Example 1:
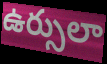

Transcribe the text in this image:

ఉర్సులా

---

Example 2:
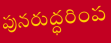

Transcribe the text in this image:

పునరుద్ధరింప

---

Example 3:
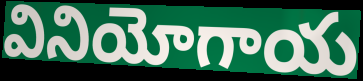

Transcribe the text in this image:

వినియోగాయ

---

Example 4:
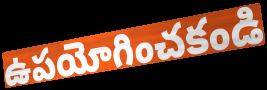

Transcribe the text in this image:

ఉపయోగించకండి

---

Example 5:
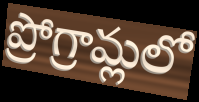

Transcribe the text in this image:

ప్రోగ్రామ్లలో